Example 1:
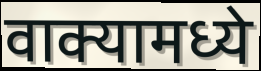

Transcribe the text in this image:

वाक्यामध्ये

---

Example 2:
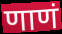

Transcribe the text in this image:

णाणं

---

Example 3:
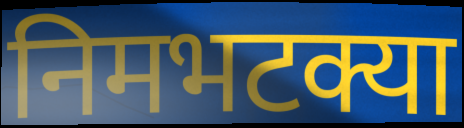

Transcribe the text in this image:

निमभटक्या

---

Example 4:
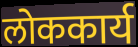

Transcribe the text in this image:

लोककार्य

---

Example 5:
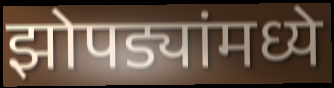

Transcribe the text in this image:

झोपड्यांमध्ये